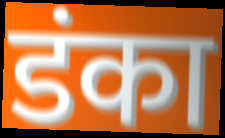
डंका